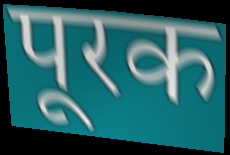
पूरक